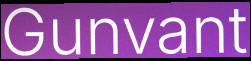
Gunvant